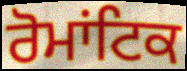
ਰੋਮਾਂਟਿਕ